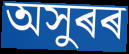
অসুৰৰ